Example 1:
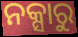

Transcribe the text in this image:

ନକ୍ସାରୁ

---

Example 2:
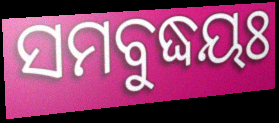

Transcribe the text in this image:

ସମବୁଦ୍ଧୟଃ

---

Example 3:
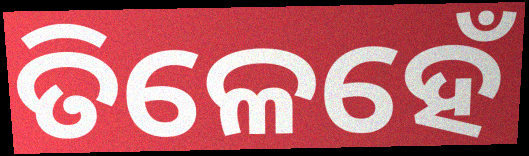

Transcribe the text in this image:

ତିଳେହେଁ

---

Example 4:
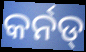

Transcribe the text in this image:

କର୍ନଡ୍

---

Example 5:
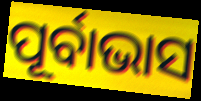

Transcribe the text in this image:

ପୂର୍ବାଭାସ